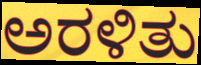
ಅರಳಿತು